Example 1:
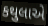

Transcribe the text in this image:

કથુલાએ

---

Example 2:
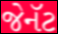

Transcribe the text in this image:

જેનૅટ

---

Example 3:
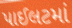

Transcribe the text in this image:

પાઈલટમાં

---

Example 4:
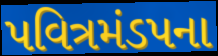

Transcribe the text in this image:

પવિત્રમંડપના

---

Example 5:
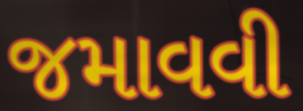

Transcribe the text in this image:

જમાવવી